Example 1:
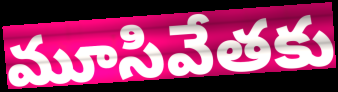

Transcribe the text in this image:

మూసివేతకు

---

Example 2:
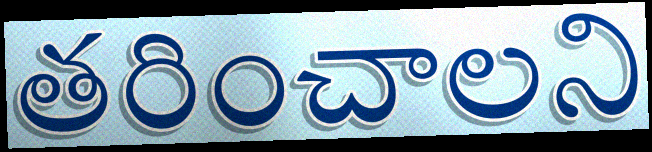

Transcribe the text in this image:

తరించాలని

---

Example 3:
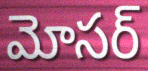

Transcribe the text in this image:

మోసర్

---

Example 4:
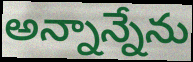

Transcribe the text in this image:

అన్నాన్నేను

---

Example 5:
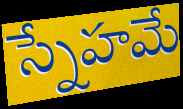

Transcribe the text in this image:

స్నేహమే